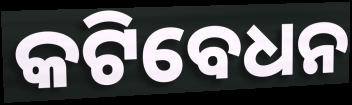
କଟିବେଧନ